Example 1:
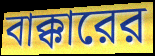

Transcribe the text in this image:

বাক্কারের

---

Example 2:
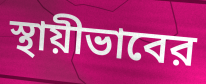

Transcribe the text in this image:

স্থায়ীভাবের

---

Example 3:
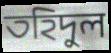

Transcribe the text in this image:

তহিদুল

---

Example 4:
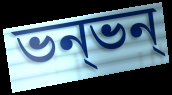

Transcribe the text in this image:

ভন্ভন্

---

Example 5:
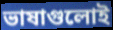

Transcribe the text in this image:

ভাষাগুলোই